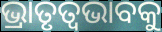
ଭ୍ରାତୃତ୍ୱଭାବକୁ